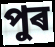
পুৰ